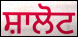
ਸ਼ਾਲੋਟ